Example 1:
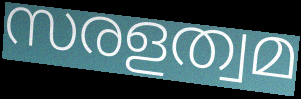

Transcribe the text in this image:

സരളത്വമ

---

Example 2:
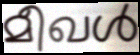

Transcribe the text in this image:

മീഖൾ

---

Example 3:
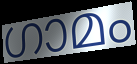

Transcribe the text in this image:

ഗാമം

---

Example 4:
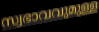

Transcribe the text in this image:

സ്വഭാവവുമുള്ള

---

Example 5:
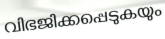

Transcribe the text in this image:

വിഭജിക്കപ്പെടുകയും